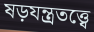
ষড়যন্ত্রতত্ত্বে